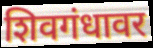
शिवगंधावर